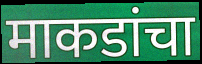
माकडांचा